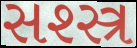
સશ્સ્ત્ર